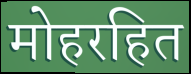
मोहरहित